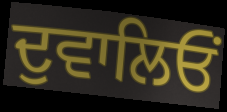
ਦੁਵਾਲਿਓਂ